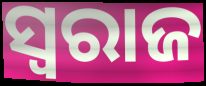
ସ୍ବରାଜ